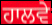
ਹਾਲਵੇ